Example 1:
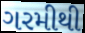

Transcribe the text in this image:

ગરમીથી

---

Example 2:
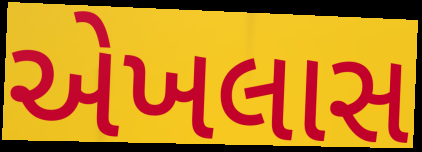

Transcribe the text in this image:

એખલાસ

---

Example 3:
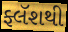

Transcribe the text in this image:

ફ્લૅશથી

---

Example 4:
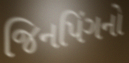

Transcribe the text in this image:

જિનપિંગનો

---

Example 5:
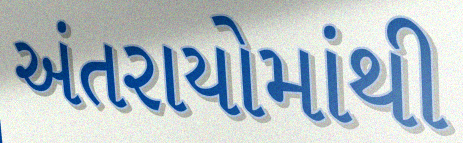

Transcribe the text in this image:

અંતરાયોમાંથી